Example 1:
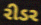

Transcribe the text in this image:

રીડર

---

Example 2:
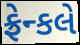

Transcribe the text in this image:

ફ્રેન્કલે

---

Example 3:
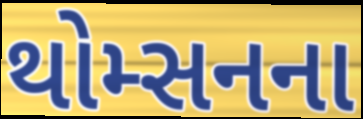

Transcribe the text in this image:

થોમ્સનના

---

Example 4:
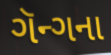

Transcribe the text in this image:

ગૅન્ગના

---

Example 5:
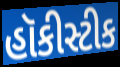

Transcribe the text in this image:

હૉકીસ્ટીક